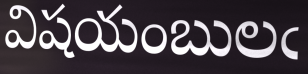
విషయంబులఁ